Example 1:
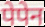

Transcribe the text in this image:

पेपेन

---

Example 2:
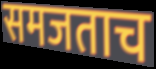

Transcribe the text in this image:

समजताच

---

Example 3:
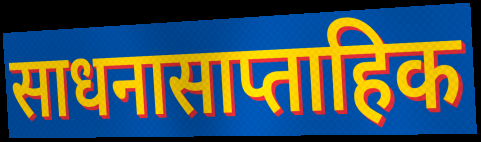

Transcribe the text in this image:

साधनासाप्ताहिक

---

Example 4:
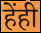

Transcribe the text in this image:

हेंही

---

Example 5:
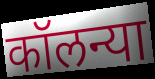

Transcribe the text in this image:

कॉलन्या